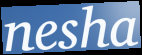
nesha